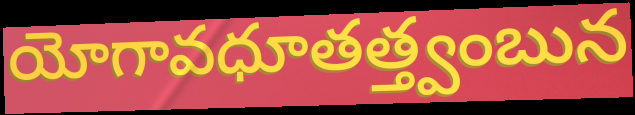
యోగావధూతత్త్వంబున